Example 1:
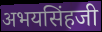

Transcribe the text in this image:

अभयसिंहजी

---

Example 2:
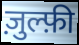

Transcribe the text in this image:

ज़ुल्फ़ी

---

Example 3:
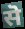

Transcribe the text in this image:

सॆ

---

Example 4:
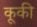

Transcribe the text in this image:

कूकी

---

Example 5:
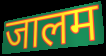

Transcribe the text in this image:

जालम